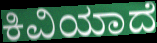
ಕಿವಿಯಾದೆ